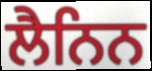
ਲੈਨਿਨ